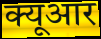
क्‍यूआर